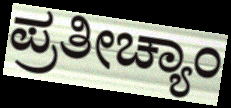
ಪ್ರತೀಚ್ಯಾಂ